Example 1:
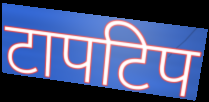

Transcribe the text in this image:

टापटिप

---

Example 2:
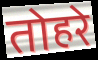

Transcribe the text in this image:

तोहरे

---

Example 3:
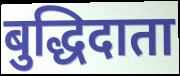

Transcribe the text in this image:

बुद्धिदाता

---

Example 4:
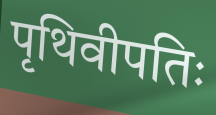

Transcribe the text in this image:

पृथिवीपतिः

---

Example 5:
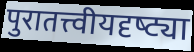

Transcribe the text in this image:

पुरातत्त्वीयदृष्ट्या